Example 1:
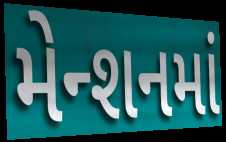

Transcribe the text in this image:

મેન્શનમાં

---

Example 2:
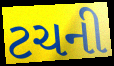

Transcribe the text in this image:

ટચની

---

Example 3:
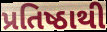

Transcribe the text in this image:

પ્રતિષ્ઠાથી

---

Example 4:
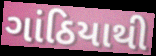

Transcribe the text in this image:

ગાંઠિયાથી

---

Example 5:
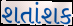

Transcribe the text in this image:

શતાંશક